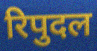
रिपुदल